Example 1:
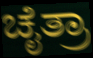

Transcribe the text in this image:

ಚೈತ್ರಾ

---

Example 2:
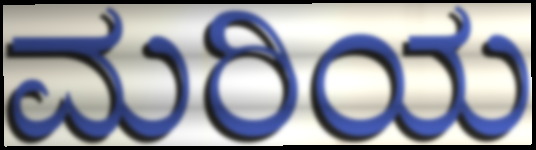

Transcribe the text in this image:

ಮರಿಯ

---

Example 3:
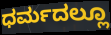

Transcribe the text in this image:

ಧರ್ಮದಲ್ಲೂ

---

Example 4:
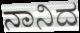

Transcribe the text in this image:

ನಾನಿದ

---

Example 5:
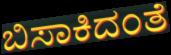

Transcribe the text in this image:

ಬಿಸಾಕಿದಂತೆ